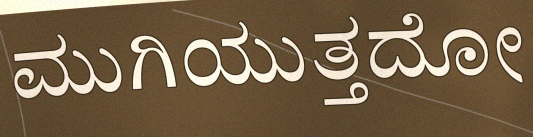
ಮುಗಿಯುತ್ತದೋ